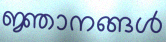
ജ്ഞാനങ്ങൾ